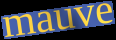
mauve